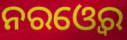
ନରଓ୍ବେର